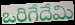
ఒరిగేదేమి